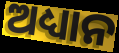
ଅଧ୍ୟାନ